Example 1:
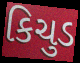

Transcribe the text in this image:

કિચુડ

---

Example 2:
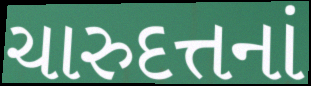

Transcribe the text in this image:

ચારુદત્તનાં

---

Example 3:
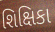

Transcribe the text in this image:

શિક્ષિકા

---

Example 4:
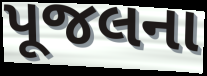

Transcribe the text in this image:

પૂજલના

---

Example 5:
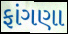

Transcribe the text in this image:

ફાંગણા